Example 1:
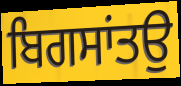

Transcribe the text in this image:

ਬਿਗਸਾਂਤਉ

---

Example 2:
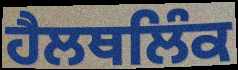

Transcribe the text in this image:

ਹੈਲਥਲਿੰਕ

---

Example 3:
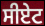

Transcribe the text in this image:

ਸੀਏਟ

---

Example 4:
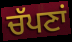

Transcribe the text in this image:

ਚੱਪਣਾਂ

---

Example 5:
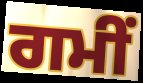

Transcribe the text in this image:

ਗਮੀਂ